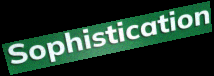
Sophistication